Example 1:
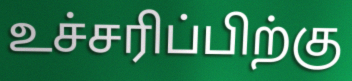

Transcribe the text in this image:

உச்சரிப்பிற்கு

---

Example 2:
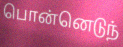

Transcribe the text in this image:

பொன்னெடுந்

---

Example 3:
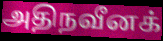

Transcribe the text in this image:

அதிநவீனக்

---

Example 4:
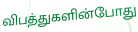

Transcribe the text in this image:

விபத்துகளின்போது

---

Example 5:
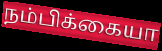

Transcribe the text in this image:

நம்பிக்கையா